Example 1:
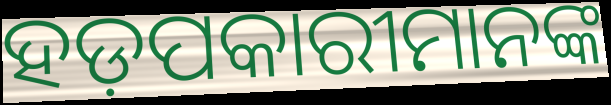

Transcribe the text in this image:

ହଡ଼ପକାରୀମାନଙ୍କ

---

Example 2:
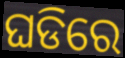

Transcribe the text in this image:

ଘଡିରେ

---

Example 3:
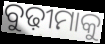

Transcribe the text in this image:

ବୁଢ଼ୀମାକୁ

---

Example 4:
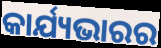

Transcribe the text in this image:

କାର୍ଯ୍ୟଭାରର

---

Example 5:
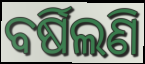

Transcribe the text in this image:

ବର୍ଷିଲଣି